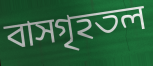
বাসগৃহতল